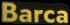
Barca